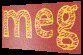
meg